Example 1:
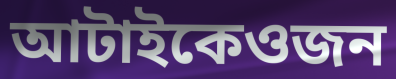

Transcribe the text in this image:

আটাইকেওজন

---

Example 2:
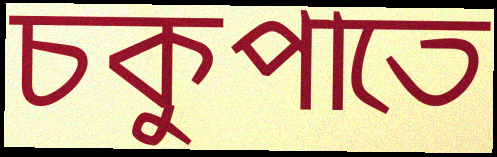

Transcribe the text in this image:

চকুপাতে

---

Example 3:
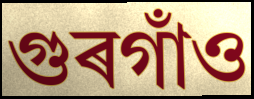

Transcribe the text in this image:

গুৰগাঁও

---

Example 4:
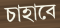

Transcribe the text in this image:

চাহাবে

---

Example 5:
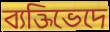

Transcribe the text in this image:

ব্যক্তিভেদে